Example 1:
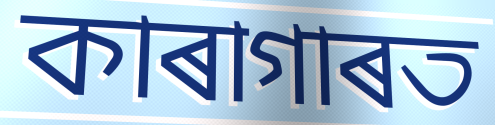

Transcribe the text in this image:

কাৰাগাৰত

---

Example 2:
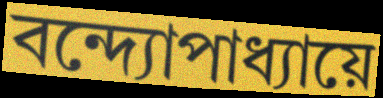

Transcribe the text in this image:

বন্দ্যোপাধ্যায়ে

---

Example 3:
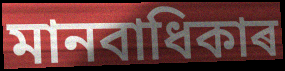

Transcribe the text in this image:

মানবাধিকাৰ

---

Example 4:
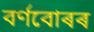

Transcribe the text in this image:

বৰ্ণবোৰৰ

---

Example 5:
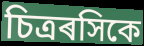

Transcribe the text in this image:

চিত্ৰৰসিকে